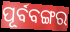
ପୂର୍ବବଙ୍ଗର